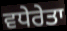
ਵਧੇਰੇਤਾ